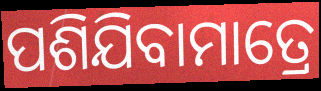
ପଶିଯିବାମାତ୍ରେ